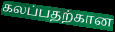
கலப்பதற்கான